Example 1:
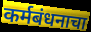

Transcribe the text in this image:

कर्मबंधनाचा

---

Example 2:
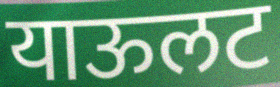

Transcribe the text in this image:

याऊलट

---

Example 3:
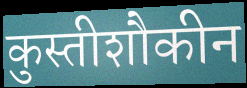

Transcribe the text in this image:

कुस्तीशौकीन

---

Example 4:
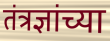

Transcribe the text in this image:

तंत्रज्ञांच्या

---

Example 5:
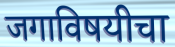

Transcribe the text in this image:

जगाविषयीचा